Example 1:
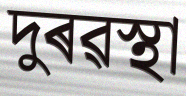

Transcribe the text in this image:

দুৰৱস্থা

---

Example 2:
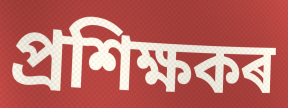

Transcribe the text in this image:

প্ৰশিক্ষকৰ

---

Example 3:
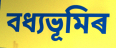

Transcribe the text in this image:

বধ্যভূমিৰ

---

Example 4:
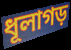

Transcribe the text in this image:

ধূলাগড়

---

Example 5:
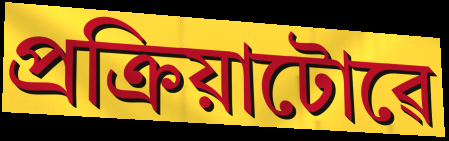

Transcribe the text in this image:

প্ৰক্ৰিয়াটোৱে